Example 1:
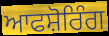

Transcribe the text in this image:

ਆਫਸ਼ੋਰਿੰਗ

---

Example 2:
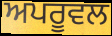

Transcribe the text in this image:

ਅਪਰੂਵਲ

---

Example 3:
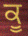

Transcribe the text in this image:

ਕੂ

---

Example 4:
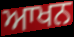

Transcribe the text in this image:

ਆਖਨ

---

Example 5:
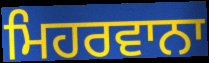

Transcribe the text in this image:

ਮਿਹਰਵਾਨਾ